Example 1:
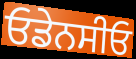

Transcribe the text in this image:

ਓਡੇਨਸੀਓ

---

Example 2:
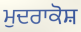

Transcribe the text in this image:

ਮੁਦਰਾਕੋਸ਼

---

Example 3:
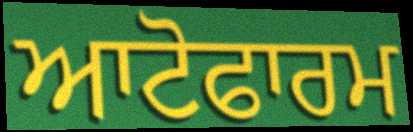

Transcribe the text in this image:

ਆਟੋਫਾਰਮ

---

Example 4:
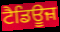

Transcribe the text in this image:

ਟੈਡਿਊਜ਼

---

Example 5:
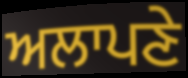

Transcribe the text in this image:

ਅਲਾਪਣੇ